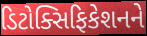
ડિટોક્સિફિકેશનને